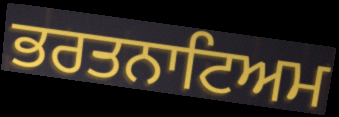
ਭਰਤਨਾਟਿਅਮ